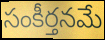
సంకీర్తనమే